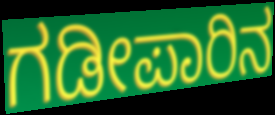
ಗಡೀಪಾರಿನ